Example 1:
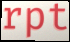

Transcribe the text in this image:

rpt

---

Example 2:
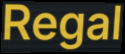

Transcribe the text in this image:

Regal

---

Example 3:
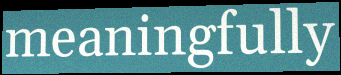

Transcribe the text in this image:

meaningfully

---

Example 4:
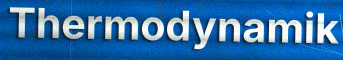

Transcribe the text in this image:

Thermodynamik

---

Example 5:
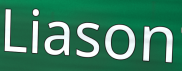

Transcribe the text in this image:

Liason